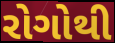
રોગોથી